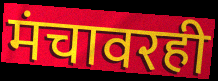
मंचावरही